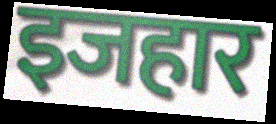
इजहार